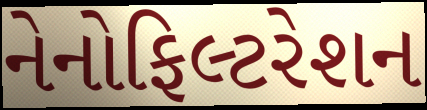
નેનોફિલ્ટરેશન